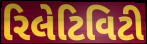
રિલેટિવિટી